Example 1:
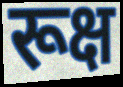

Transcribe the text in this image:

रूक्ष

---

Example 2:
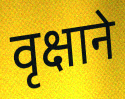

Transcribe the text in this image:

वृक्षाने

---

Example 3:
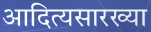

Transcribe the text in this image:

आदित्यसारख्या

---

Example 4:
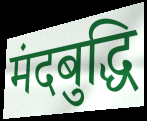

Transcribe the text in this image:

मंदबुद्धि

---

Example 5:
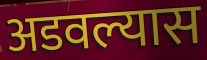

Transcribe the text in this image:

अडवल्यास